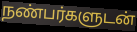
நண்பர்களுடன்